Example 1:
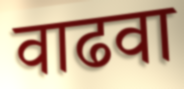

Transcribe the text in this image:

वाढवा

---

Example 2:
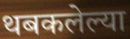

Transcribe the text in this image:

थबकलेल्या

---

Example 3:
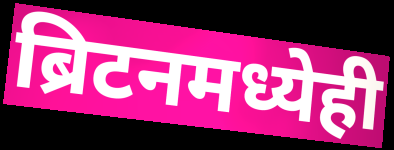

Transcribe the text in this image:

ब्रिटनमध्येही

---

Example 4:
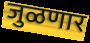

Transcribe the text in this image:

जुळणार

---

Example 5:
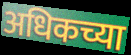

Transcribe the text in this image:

अधिकच्या